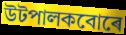
উটপালকবোৰে